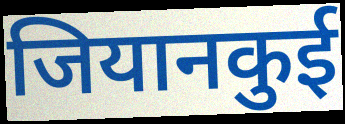
जियानकुई